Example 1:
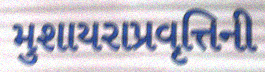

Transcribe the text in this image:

મુશાયરાપ્રવૃત્તિની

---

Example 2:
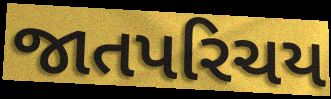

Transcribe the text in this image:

જાતપરિચય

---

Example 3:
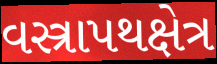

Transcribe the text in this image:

વસ્ત્રાપથક્ષેત્ર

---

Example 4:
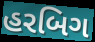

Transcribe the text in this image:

હરબિગ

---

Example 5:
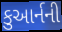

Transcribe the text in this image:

કુઆર્નની